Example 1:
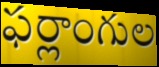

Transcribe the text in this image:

ఫర్లాంగుల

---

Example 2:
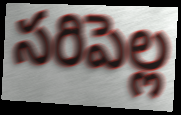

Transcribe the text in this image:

సరిపెల్ల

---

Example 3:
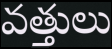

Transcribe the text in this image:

వత్తులు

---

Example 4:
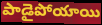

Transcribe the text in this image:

పాడైపోయాయి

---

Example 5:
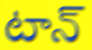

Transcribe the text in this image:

టాన్